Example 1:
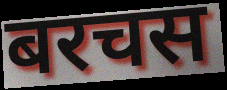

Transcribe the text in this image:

बरचस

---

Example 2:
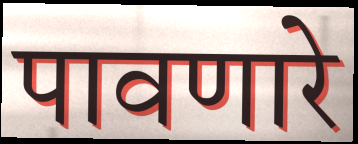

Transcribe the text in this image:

पावणारे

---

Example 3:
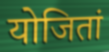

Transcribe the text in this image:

योजितां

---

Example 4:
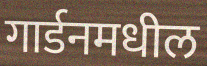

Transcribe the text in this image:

गार्डनमधील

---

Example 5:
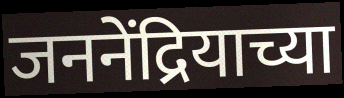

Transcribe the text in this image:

जननेंद्रियाच्या